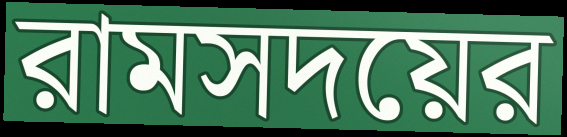
রামসদয়ের